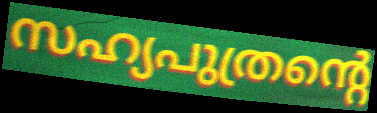
സഹ്യപുത്രന്റെ